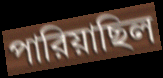
পারিয়াছিল